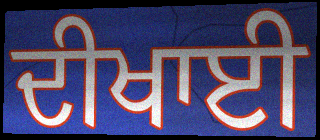
ਦੀਖਾਈ